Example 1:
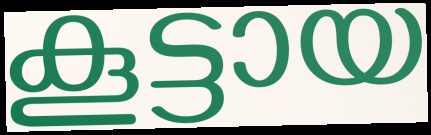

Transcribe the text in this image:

കൂട്ടായ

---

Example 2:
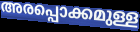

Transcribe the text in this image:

അരപ്പൊക്കമുള്ള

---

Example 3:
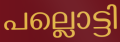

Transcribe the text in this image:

പല്ലൊട്ടി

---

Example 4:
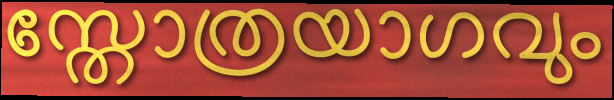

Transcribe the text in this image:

സ്തോത്രയാഗവും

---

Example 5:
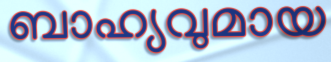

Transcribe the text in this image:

ബാഹ്യവുമായ